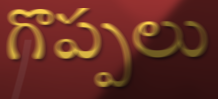
గొప్పలు